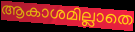
ആകാശമില്ലാതെ